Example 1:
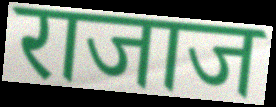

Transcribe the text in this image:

राजाज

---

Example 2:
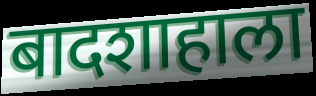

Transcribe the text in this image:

बादशाहाला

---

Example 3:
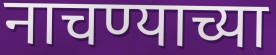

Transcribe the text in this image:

नाचण्याच्या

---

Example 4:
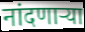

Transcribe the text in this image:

नांदणाऱ्या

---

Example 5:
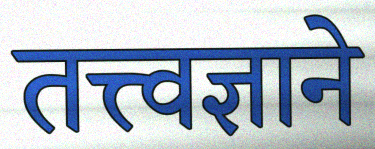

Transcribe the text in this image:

तत्त्वज्ञाने